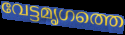
വേട്ടമൃഗത്തെ